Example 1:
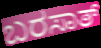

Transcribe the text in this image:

ಬರಸಾತ್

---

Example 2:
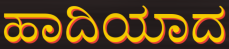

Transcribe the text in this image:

ಹಾದಿಯಾದ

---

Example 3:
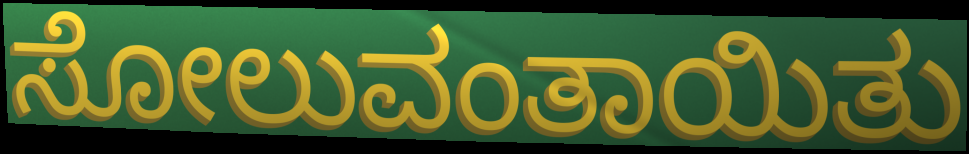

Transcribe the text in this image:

ಸೋಲುವಂತಾಯಿತು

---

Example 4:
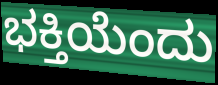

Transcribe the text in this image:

ಭಕ್ತಿಯೆಂದು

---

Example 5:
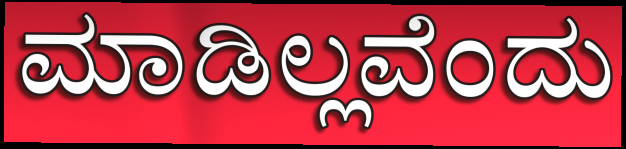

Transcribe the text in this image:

ಮಾಡಿಲ್ಲವೆಂದು